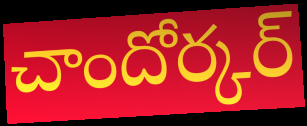
చాందోర్కర్